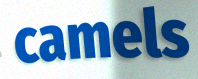
camels